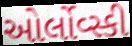
ઓર્લોવ્સ્કી